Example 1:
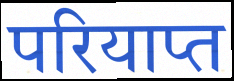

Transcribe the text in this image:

परियाप्त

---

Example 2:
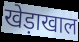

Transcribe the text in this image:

खेड़ाखाल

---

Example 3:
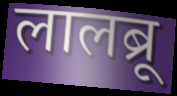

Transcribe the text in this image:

लालब्रू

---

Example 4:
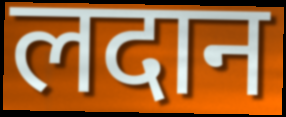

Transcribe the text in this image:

लदान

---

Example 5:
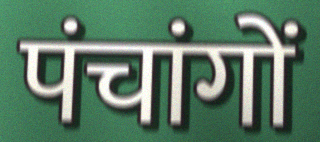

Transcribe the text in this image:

पंचांगों